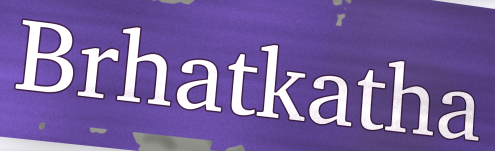
Brhatkatha